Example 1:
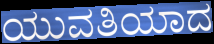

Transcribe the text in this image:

ಯುವತಿಯಾದ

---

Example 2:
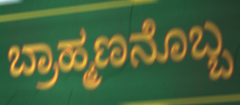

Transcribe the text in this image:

ಬ್ರಾಹ್ಮಣನೊಬ್ಬ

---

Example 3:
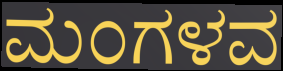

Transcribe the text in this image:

ಮಂಗಳವ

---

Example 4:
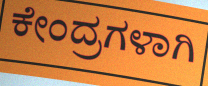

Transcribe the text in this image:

ಕೇಂದ್ರಗಳಾಗಿ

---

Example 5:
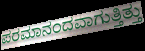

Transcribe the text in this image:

ಪರಮಾನಂದವಾಗುತ್ತಿತ್ತು